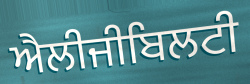
ਐਲੀਜੀਬਿਲਟੀ